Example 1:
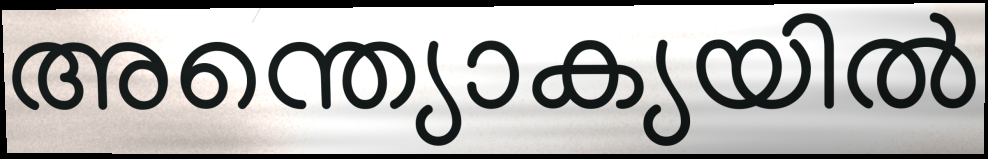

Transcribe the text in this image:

അന്ത്യൊക്യയിൽ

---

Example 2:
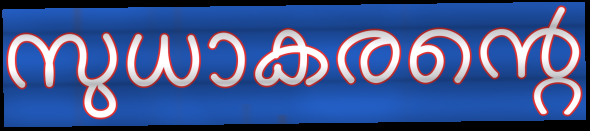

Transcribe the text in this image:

സുധാകരന്റെ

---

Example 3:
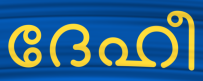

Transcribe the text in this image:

ദേഹീ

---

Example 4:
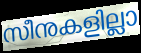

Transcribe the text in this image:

സീനുകളില്ലാ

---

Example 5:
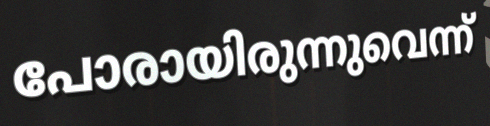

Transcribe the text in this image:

പോരായിരുന്നുവെന്ന്